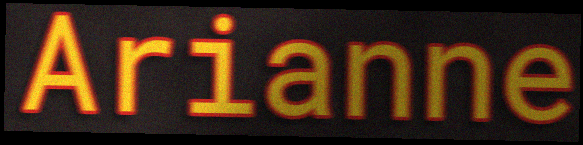
Arianne